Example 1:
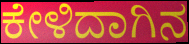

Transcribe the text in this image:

ಕೇಳಿದಾಗಿನ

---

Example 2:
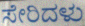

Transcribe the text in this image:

ಸೇರಿದಳು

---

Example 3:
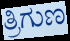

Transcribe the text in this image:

ತ್ರಿಗುಣ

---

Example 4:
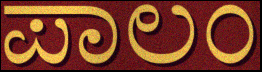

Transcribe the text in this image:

ಪಾಲಂ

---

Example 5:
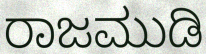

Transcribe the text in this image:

ರಾಜಮುಡಿ